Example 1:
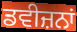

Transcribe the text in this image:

ਡਵੀਜ਼ਨਾਂ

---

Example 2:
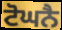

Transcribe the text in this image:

ਟੋਘਨੈ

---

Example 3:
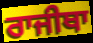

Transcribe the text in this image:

ਰਾਜੀਥਾ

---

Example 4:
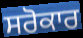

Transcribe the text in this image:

ਸਰੋਕਾਰ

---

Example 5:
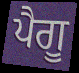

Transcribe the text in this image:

ਪੈਗੂ